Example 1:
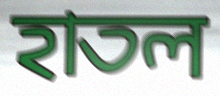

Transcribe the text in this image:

হাতল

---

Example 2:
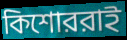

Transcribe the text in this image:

কিশোররাই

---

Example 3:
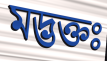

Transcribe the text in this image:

মদ্ভক্তঃ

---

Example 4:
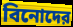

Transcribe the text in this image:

বিনোদের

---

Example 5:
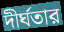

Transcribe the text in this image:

দীর্ঘতার